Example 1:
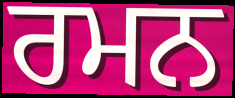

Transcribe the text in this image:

ਰਮਨ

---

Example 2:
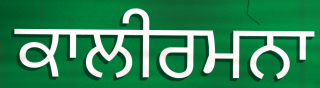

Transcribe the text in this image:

ਕਾਲੀਰਮਨਾ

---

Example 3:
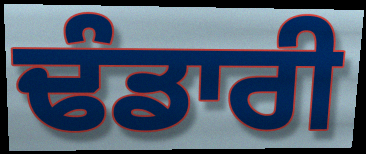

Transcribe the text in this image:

ਢੰਡਾਰੀ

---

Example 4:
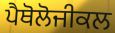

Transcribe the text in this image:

ਪੈਥੋਲੋਜੀਕਲ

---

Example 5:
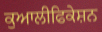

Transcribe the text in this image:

ਕੁਆਲੀਫਿਕੇਸ਼ਨ